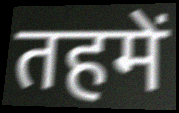
तहमें